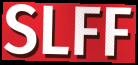
SLFF